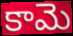
కామె